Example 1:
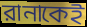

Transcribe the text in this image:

রানাকেই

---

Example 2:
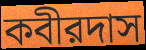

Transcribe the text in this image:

কবীরদাস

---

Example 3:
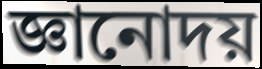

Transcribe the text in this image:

জ্ঞানোদয়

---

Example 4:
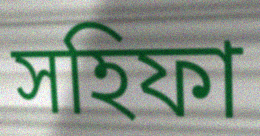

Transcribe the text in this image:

সহিফা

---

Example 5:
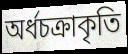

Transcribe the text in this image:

অর্ধচক্রাকৃতি